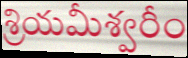
శ్రియమీశ్వరీం